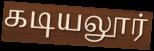
கடியலூர்